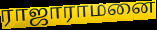
ராஜாராமனை